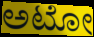
ಅಟೋ